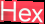
Hex